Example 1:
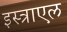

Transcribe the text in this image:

इस्त्राएल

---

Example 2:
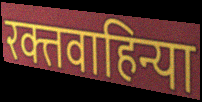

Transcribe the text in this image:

रक्तवाहिन्या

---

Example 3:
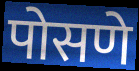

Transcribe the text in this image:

पोसणे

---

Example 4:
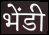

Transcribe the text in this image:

भेंडी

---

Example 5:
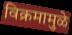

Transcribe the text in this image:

विक्रमामुळे